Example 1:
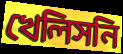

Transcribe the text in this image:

খেলিসনি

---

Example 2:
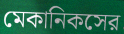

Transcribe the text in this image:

মেকানিকসের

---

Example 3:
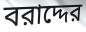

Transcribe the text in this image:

বরাদ্দের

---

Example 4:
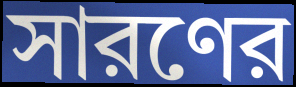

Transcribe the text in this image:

সারণের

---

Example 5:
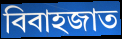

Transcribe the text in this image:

বিবাহজাত